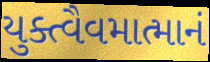
યુક્ત્વૈવમાત્માનં